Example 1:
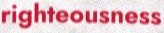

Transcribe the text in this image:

righteousness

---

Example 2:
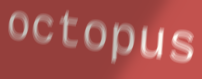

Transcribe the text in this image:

octopus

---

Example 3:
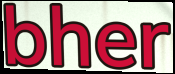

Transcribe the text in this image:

bher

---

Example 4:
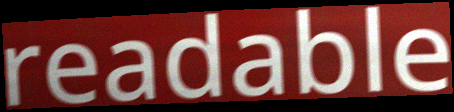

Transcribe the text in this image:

readable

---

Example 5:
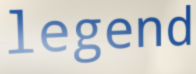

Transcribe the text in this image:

legend